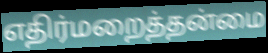
எதிர்மறைத்தன்மை